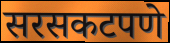
सरसकटपणे